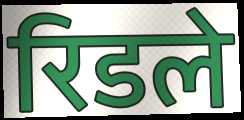
रिडले